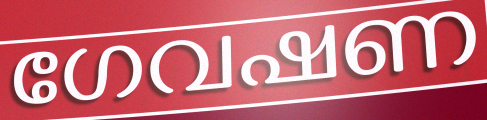
ഗേവഷണ